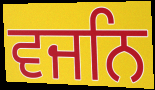
ਵਜਨਿ